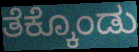
ತೆಕ್ಕೊಂಡು